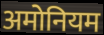
अमोनियम